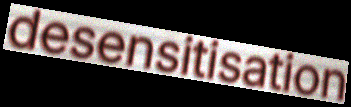
desensitisation